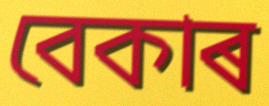
বেকাৰ